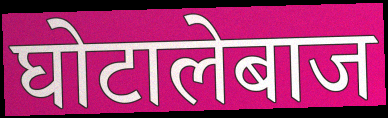
घोटालेबाज